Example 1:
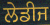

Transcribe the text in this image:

ਲੇਡੀਜ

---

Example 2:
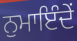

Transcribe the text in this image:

ਨੁਮਾਇੰਦੇਂ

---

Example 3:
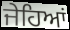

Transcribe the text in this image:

ਜੇਹਿਆਂ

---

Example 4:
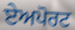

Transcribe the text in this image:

ਏਅਪੋਰਟ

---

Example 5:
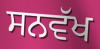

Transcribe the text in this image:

ਸਨਵੱਖ